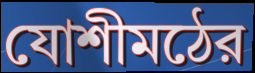
যোশীমঠের